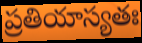
ప్రతియాస్యతః